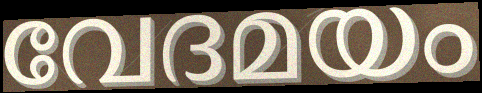
വേദമയം